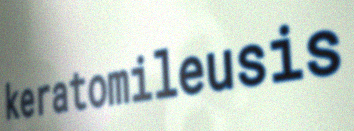
keratomileusis